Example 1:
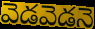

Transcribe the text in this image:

వెడవెడనె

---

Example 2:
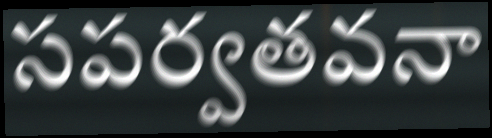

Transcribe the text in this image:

సపర్వతవనా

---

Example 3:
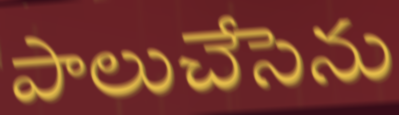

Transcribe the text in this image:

పాలుచేసెను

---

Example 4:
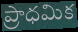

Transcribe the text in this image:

ప్రాధమిక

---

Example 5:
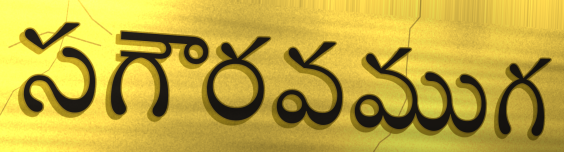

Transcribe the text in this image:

సగౌరవముగ